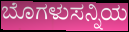
ಬೊಗಳುಸನ್ನಿಯ